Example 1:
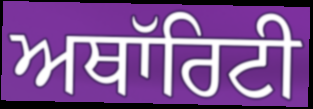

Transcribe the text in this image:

ਅਥਾੱਰਿਟੀ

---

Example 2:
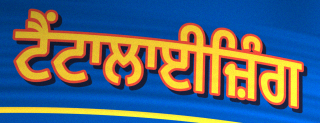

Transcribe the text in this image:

ਟੈਂਟਾਲਾਈਜ਼ਿੰਗ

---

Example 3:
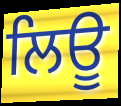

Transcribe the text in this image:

ਲਿਊ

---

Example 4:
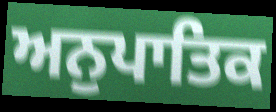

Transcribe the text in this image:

ਅਨੁਪਾਤਿਕ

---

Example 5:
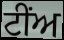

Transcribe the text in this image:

ਟੀਂਅ